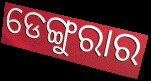
ଡେଙ୍ଗୁରାର